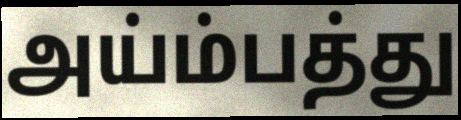
அய்ம்பத்து